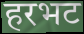
हरभट